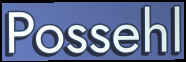
Possehl